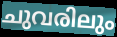
ചുവരിലും